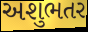
અશુભતર